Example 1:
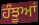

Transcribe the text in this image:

ਹੰਝੂਆਂ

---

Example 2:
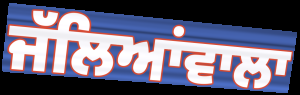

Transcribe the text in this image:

ਜੱਲਿਆਂਵਾਲਾ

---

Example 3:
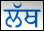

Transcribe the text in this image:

ਲੱਥ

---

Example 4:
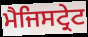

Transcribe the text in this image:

ਮੈਜਿਸਟ੍ਰੇਟ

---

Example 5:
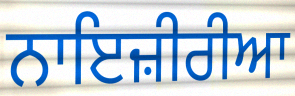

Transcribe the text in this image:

ਨਾਇਜ਼ੀਰੀਆ